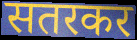
सतरकर